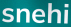
snehi